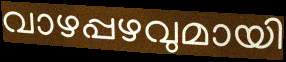
വാഴപ്പഴവുമായി